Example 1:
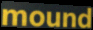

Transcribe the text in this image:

mound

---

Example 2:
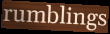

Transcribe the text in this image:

rumblings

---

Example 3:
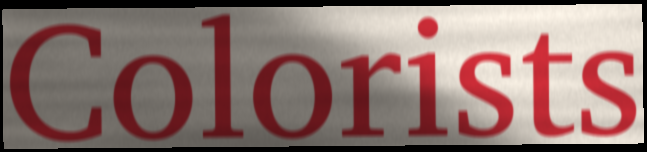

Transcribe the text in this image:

Colorists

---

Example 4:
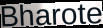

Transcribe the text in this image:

Bharote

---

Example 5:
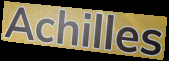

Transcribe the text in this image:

Achilles